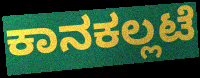
ಕಾನಕಲ್ಲಟೆ